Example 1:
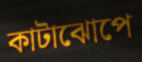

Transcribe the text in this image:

কাটাঝোপে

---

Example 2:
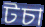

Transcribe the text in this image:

টচা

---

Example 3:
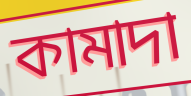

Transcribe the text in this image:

কামাদা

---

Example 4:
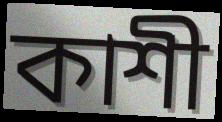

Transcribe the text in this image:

কাশী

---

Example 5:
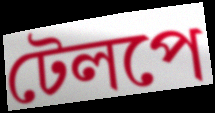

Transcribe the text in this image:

টেলপে